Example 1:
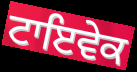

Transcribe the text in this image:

ਟਾਇਵੇਕ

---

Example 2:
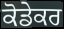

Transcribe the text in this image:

ਕੋਡੇਕਰ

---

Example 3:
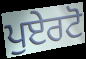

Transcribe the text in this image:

ਪੁਏਰਟੋ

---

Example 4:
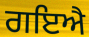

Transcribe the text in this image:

ਗਇਐ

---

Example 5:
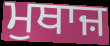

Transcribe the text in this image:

ਮੁਥਾਜ਼